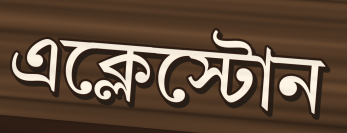
এক্লেস্টোন